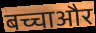
बच्चाऔर